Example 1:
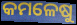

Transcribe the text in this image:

କମଳେଷୁ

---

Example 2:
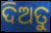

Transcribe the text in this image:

ଦିଅତୁ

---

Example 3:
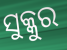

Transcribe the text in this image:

ସୁକ୍କୁର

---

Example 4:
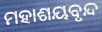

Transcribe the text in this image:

ମହାଶୟବୃନ୍ଦ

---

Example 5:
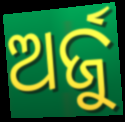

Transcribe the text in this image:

ଅର୍ଜୁ